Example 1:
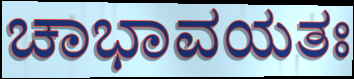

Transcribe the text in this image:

ಚಾಭಾವಯತಃ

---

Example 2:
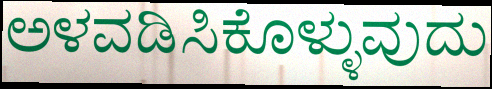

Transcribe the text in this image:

ಅಳವಡಿಸಿಕೊಳ್ಳುವುದು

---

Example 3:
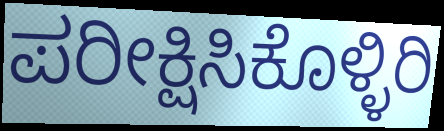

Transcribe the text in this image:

ಪರೀಕ್ಷಿಸಿಕೊಳ್ಳಿರಿ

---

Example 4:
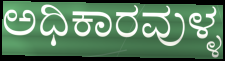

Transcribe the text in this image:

ಅಧಿಕಾರವುಳ್ಳ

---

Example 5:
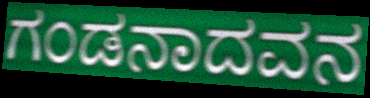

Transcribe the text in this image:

ಗಂಡನಾದವನ